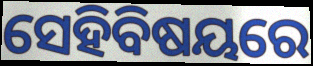
ସେହିବିଷୟରେ